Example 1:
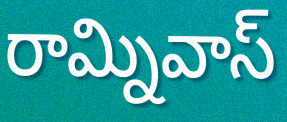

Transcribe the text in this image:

రామ్నివాస్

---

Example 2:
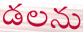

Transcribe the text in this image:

డలను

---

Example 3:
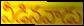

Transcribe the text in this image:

వీడినవాడు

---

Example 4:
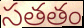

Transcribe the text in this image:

సతతం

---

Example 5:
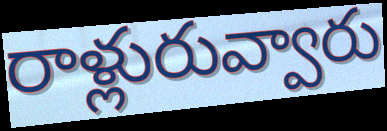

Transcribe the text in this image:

రాళ్లురువ్వారు